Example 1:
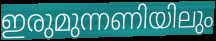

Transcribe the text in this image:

ഇരുമുന്നണിയിലും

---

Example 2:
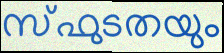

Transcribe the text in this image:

സ്ഫുടതയും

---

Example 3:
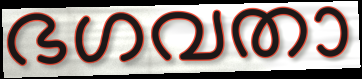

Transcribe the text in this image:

ഭഗവതാ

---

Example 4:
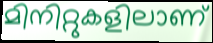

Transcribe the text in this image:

മിനിറ്റുകളിലാണ്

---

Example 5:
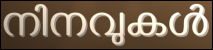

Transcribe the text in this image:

നിനവുകൾ